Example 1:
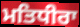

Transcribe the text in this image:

ਮਤਿਧੀਰਾ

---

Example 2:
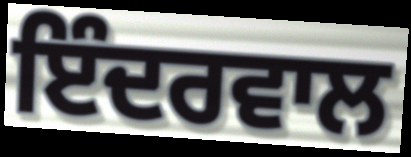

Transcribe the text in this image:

ਇੰਦਰਵਾਲ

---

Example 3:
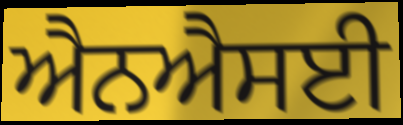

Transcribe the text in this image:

ਐਨਐਸਈ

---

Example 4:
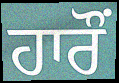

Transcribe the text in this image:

ਹਾਰੌਂ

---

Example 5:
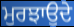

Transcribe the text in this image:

ਮੁਰਝਾਉਦੇ